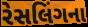
રેસલિંગના